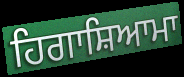
ਹਿਗਾਸ਼ਿਆਮਾ